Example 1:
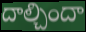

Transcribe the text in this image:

దాల్చిందా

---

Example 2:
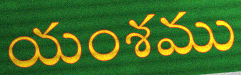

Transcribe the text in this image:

యంశము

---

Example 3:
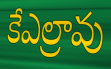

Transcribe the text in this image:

కేఎల్రావు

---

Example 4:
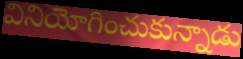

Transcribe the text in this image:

వినియోగించుకున్నాడు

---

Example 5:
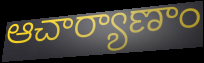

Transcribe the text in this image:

ఆచార్యాణాం